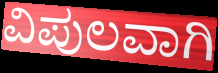
ವಿಪುಲವಾಗಿ